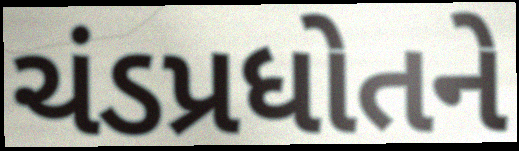
ચંડપ્રધોતને